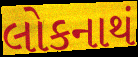
લોકનાથં